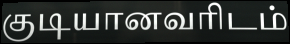
குடியானவரிடம்